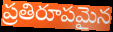
ప్రతిరూపమైన